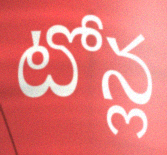
టోన్ల